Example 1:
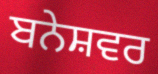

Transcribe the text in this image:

ਬਨੇਸ਼ਵਰ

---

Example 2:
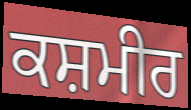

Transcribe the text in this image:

ਕਸ਼ਮੀਰ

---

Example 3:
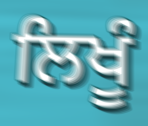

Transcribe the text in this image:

ਲਿਖੂੰ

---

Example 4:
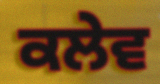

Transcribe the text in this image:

ਕਲੇਵ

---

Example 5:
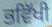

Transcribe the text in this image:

ਭਵਿੱਖੀ